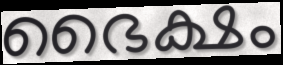
ഭൈക്ഷം